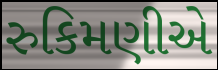
રુકિમણીએ